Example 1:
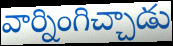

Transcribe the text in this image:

వార్నింగిచ్చాడు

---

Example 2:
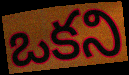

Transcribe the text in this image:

ఒకని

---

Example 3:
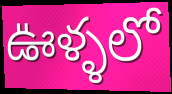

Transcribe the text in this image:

ఊళ్ళలో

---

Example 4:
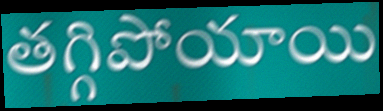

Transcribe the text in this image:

తగ్గిపోయాయి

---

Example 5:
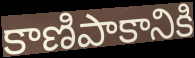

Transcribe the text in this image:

కాణిపాకానికి